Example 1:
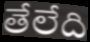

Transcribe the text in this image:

తేలేది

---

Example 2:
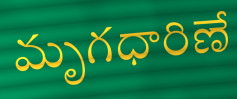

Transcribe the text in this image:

మృగధారిణే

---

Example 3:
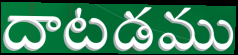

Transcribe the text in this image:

దాటడము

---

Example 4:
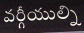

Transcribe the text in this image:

వర్గీయుల్ని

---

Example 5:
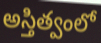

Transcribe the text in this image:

అస్తిత్వంలో